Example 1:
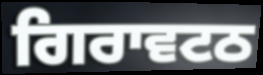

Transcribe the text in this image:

ਗਿਰਾਵਟਠ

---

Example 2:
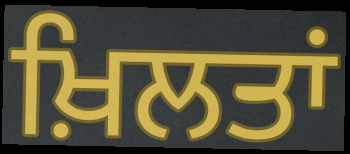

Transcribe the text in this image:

ਖ਼ਿਲਤਾਂ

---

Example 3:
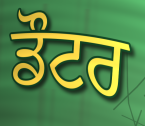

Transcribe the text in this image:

ਡੌਟਰ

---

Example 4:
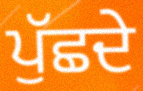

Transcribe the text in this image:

ਪੁੱਛਦੇ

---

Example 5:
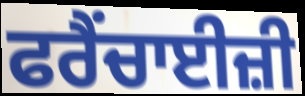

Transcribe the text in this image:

ਫਰੈਂਚਾਈਜ਼ੀ